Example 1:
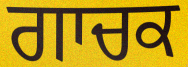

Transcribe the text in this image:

ਗਾਚਕ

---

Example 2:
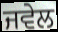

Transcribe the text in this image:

ਜਵੇਲ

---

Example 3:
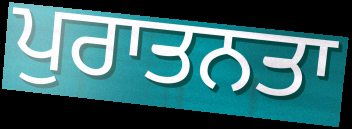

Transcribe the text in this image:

ਪੁਰਾਤਨਤਾ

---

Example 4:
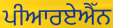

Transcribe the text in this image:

ਪੀਆਰਏਐੱਨ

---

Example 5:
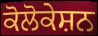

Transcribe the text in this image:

ਕੋਲੋਕੇਸ਼ਨ